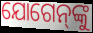
ଯୋଗେନ୍‌ଙ୍କୁ